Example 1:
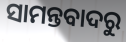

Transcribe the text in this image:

ସାମନ୍ତବାଦରୁ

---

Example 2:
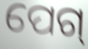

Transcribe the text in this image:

ପେଗ୍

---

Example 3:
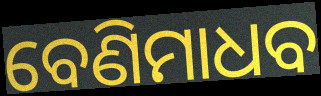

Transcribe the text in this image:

ବେଣିମାଧବ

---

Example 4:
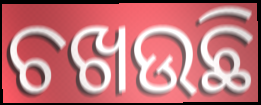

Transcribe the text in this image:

ଚଖଉଛି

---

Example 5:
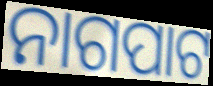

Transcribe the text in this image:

ନାଗପାଟ